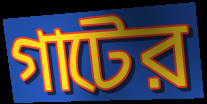
গাটের